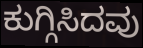
ಕುಗ್ಗಿಸಿದವು